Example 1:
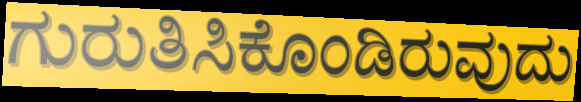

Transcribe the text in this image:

ಗುರುತಿಸಿಕೊಂಡಿರುವುದು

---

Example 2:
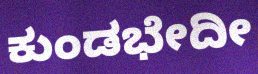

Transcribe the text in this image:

ಕುಂಡಭೇದೀ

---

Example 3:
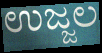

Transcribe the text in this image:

ಉಜ್ಜಲ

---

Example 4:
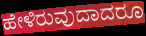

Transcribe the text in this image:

ಹೇಳಿರುವುದಾದರೂ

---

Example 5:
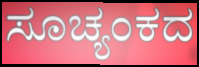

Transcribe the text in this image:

ಸೂಚ್ಯಂಕದ